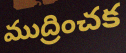
ముద్రించక